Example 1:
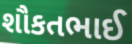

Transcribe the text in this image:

શૌકતભાઈ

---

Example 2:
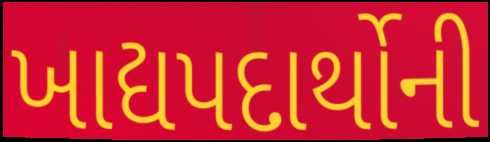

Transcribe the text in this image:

ખાદ્યપદાર્થોની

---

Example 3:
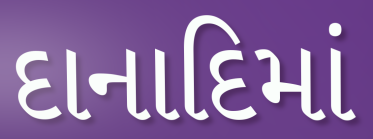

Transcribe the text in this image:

દાનાદિમાં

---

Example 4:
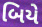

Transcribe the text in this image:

બિયે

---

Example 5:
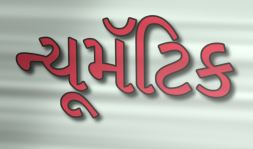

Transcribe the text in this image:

ન્યૂમૅટિક